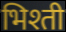
भिश्ती